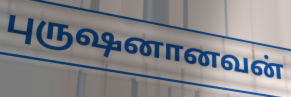
புருஷனானவன்